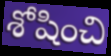
శోషించి